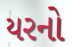
યરનો